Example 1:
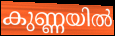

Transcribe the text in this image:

കുണ്ണയിൽ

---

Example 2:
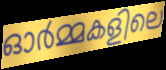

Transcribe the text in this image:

ഓർമ്മകളിലെ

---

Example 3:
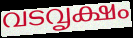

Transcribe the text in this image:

വടവൃക്ഷം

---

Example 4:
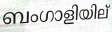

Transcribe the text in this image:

ബംഗാളിയില്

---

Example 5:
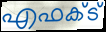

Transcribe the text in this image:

എഫക്ട്